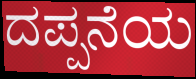
ದಪ್ಪನೆಯ